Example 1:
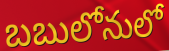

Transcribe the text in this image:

బబులోనులో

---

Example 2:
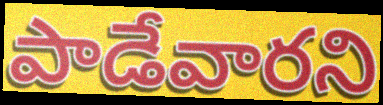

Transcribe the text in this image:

పాడేవారని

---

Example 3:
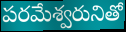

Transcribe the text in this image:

పరమేశ్వరునితో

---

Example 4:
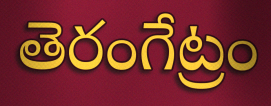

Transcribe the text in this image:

తెరంగేట్రం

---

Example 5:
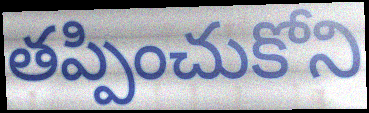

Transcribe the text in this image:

తప్పించుకోని